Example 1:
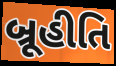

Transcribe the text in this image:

બ્રૂહીતિ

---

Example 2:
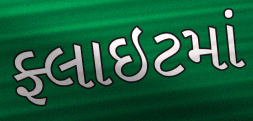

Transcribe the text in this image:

ફ્લાઇટમાં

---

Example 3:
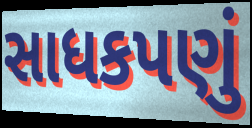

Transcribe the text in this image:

સાધકપણું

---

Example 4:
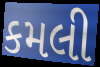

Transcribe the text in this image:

કમલી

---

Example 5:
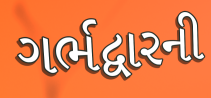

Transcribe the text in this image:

ગર્ભદ્વારની